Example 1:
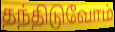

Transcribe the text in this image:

தந்திடுவோம்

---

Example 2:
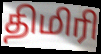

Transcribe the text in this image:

திமிரி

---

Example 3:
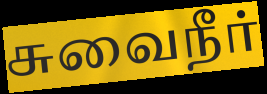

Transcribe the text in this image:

சுவைநீர்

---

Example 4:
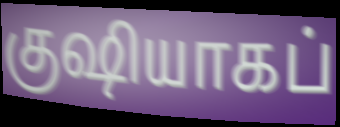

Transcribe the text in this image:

குஷியாகப்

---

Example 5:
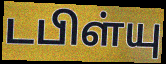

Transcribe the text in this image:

டபிள்யு